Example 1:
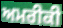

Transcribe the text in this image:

ਅਮਰੀਕੀ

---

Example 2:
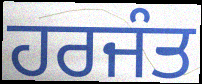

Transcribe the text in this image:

ਹਰਜੰਤ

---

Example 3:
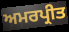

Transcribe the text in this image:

ਅਮਰਪ੍ਰੀਤ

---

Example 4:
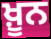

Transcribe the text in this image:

ਖ਼ੂਨ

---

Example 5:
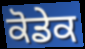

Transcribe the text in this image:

ਕੋਡੇਕ